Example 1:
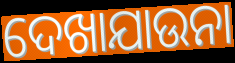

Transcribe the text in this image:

ଦେଖାଯାଉନା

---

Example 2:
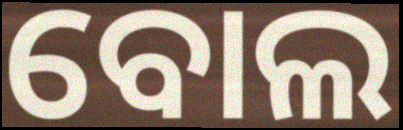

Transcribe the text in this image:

ବୋଲ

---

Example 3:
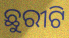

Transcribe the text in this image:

ଛୁରୀଟି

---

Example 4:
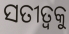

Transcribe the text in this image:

ସତୀତ୍ୱକୁ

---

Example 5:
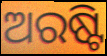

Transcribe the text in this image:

ଅରଷ୍ଟି